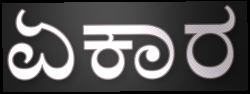
ಏಕಾರ